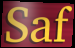
Saf